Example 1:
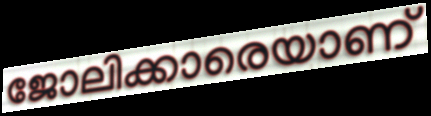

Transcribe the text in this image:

ജോലിക്കാരെയാണ്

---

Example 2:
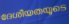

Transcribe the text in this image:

ദേശീയതയുടെ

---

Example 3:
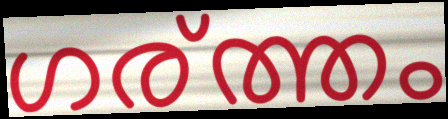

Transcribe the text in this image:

ഗര്ത്തം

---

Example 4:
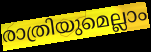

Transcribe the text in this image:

രാത്രിയുമെല്ലാം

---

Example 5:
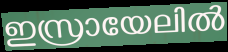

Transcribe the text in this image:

ഇസ്രായേലിൽ